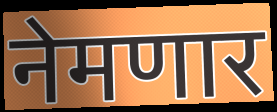
नेमणार